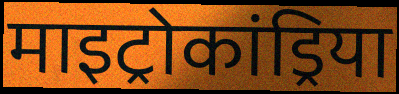
माइट्रोकांड्रिया